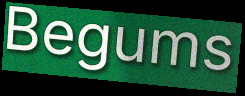
Begums